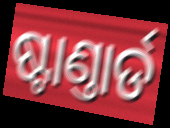
ଷ୍ଟାଣ୍ତାର୍ଡ